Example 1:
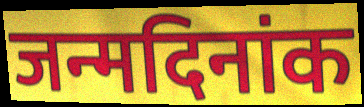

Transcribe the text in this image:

जन्मदिनांक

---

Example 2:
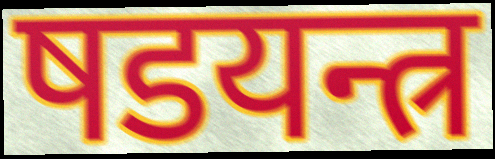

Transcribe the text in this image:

षडयन्त्र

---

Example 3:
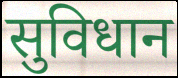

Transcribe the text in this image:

सुविधान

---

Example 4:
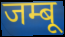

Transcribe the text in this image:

जम्बू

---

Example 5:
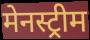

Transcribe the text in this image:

मेनस्ट्रीम